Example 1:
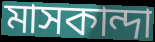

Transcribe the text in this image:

মাসকান্দা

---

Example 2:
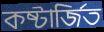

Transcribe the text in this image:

কষ্টার্জিত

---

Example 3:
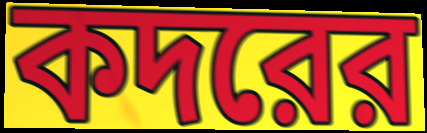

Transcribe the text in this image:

কদরের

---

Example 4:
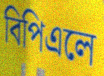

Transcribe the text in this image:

বিপিএলে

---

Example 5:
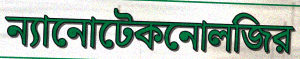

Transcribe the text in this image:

ন্যানোটেকনোলজির